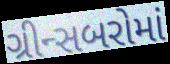
ગ્રીન્સબરોમાં